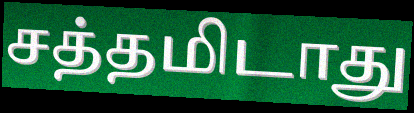
சத்தமிடாது